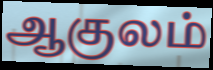
ஆகுலம்